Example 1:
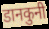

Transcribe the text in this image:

डानकुनी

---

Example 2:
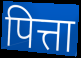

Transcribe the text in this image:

पित्ता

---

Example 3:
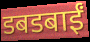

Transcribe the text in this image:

डबडबाईं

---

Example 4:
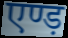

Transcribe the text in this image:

एण्ड़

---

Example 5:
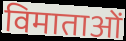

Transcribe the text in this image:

विमाताओं